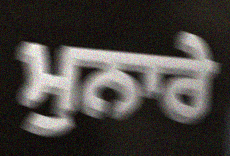
ਮੁਨਾਰੇ